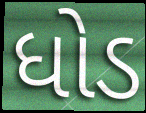
ધોડ